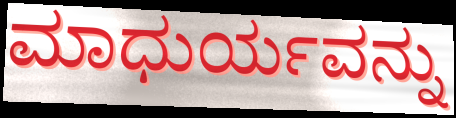
ಮಾಧುರ್ಯವನ್ನು